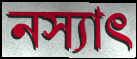
নস্যাৎ